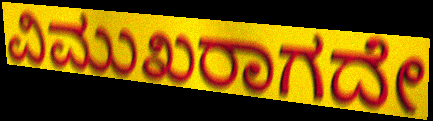
ವಿಮುಖರಾಗದೇ